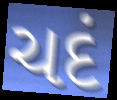
ચદં